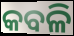
କବଳି